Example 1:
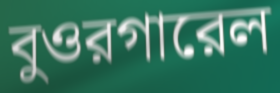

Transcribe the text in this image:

বুওরগারেল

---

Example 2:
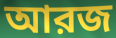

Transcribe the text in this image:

আরজ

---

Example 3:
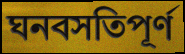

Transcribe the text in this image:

ঘনবসতিপূর্ণ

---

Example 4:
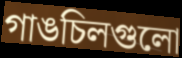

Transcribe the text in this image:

গাঙচিলগুলো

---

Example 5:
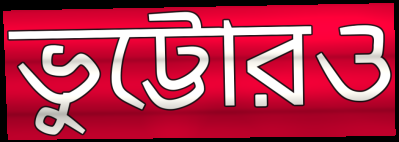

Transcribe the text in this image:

ভুট্টোরও